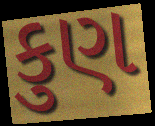
કુણ